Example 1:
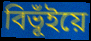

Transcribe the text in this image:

বিভূঁইয়ে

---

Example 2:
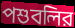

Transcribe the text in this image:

পশুবলির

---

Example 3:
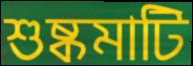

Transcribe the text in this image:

শুষ্কমাটি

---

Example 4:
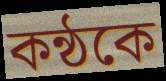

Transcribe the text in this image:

কন্ঠকে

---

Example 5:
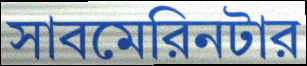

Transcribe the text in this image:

সাবমেরিনটার